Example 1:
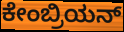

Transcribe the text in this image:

ಕೇಂಬ್ರಿಯನ್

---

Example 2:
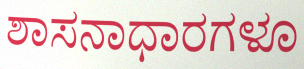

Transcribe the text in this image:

ಶಾಸನಾಧಾರಗಳೂ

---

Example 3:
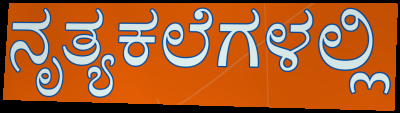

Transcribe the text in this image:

ನೃತ್ಯಕಲೆಗಳಲ್ಲಿ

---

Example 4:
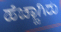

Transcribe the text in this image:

ಹೆಚ್ಚಾಗಿರು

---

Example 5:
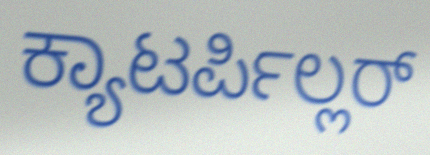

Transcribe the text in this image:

ಕ್ಯಾಟರ್ಪಿಲ್ಲರ್